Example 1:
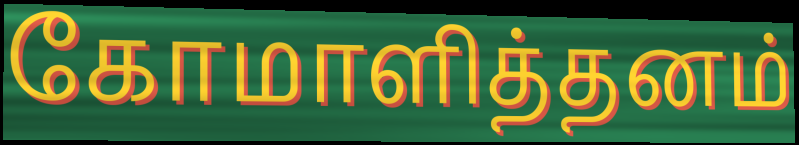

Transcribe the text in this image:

கோமாளித்தனம்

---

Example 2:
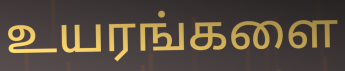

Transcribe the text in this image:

உயரங்களை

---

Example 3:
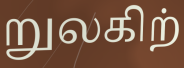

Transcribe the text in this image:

றுலகிற்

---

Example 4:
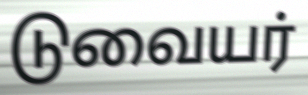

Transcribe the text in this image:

டுவையர்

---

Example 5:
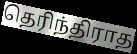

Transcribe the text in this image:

தெரிந்திராத